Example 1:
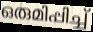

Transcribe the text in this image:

ഒരുമിപ്പിച്ച്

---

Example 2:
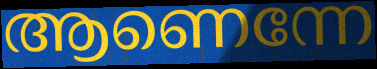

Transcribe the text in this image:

ആണെന്നേ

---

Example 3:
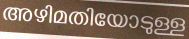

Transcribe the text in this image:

അഴിമതിയോടുള്ള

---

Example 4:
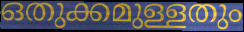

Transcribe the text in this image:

ഒതുക്കമുള്ളതും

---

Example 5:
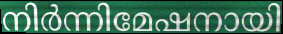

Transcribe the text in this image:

നിർന്നിമേഷനായി